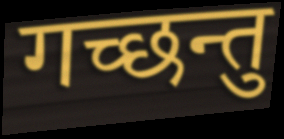
गच्छन्तु